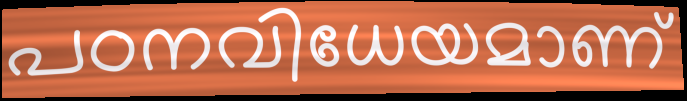
പഠനവിധേയമാണ്